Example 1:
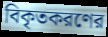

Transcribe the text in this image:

বিকৃতকরণের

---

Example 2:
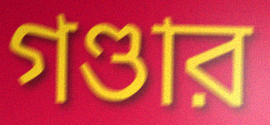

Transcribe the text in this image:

গণ্ডার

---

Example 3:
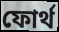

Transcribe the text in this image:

ফোর্থ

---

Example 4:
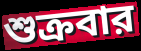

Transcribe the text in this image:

শুক্রবার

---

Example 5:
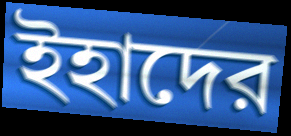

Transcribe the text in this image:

ইহাদের